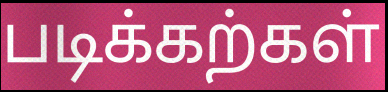
படிக்கற்கள்